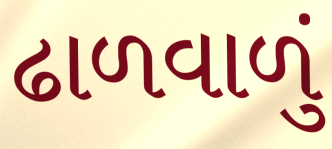
ઢાળવાળું